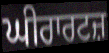
ਘੀਰਾਰਟਜ਼